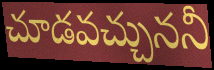
చూడవచ్చుననీ